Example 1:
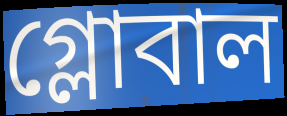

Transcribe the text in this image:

গ্লোবাল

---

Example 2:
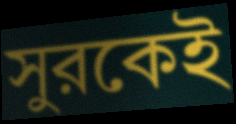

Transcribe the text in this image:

সুরকেই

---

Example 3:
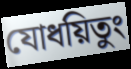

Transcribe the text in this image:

যোধয়িতুং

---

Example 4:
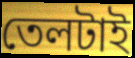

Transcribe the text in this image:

তেলটাই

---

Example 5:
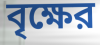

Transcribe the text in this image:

বৃক্ষের